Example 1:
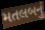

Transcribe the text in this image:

મતલબનું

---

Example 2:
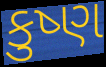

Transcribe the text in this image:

કુષ્ણ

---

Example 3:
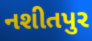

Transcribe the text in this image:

નશીતપુર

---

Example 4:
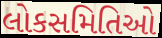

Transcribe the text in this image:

લોકસમિતિઓ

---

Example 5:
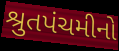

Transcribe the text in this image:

શ્રુતપંચમીનો